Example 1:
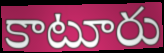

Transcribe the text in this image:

కాటూరు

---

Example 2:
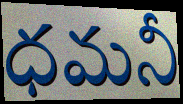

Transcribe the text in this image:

ధమనీ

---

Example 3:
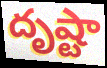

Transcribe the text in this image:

దృష్టా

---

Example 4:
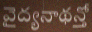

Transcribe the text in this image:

వైద్యనాథన్తో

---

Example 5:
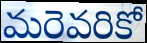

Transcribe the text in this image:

మరెవరికో